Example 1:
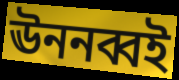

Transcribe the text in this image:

ঊননব্বই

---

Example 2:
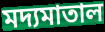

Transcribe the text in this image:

মদ্যমাতাল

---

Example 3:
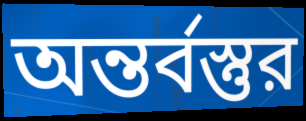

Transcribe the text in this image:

অন্তর্বস্তুর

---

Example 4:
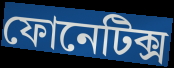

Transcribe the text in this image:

ফোনেটিক্স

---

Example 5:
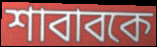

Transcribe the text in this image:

শাবাবকে